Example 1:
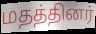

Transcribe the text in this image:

மதத்தினர்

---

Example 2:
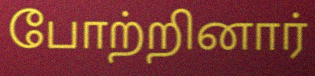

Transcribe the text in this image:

போற்றினார்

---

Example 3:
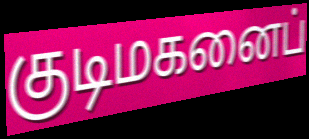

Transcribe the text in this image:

குடிமகனைப்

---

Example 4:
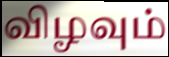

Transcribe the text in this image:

விழவும்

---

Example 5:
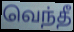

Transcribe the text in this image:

வெந்தீ